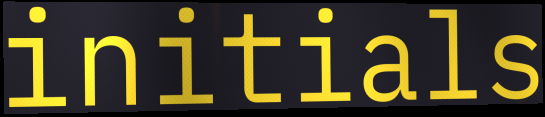
initials